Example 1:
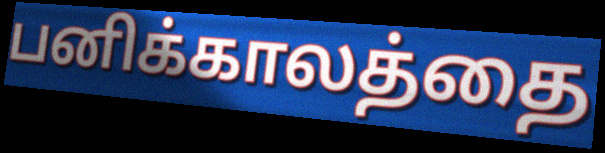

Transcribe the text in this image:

பனிக்காலத்தை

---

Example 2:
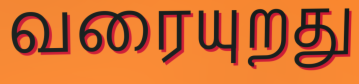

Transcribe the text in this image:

வரையுறது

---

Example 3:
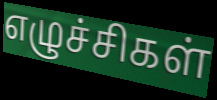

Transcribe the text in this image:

எழுச்சிகள்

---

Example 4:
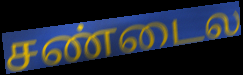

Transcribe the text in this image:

சண்டைல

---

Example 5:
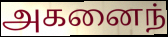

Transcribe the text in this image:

அகனைந்